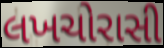
લખચોરાસી